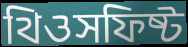
থিওসফিষ্ট